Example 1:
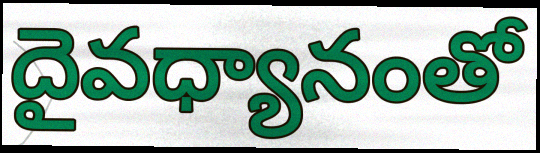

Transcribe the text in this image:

దైవధ్యానంతో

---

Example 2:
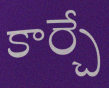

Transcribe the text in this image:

కార్చే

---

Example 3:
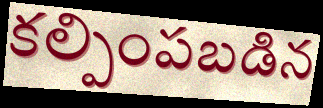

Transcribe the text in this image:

కల్పింపబడిన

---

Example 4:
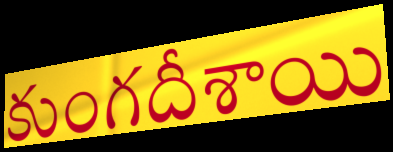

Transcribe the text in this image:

కుంగదీశాయి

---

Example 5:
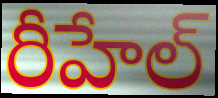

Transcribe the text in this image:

రీహేల్